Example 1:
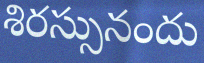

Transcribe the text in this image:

శిరస్సునందు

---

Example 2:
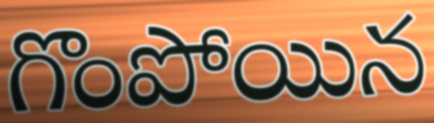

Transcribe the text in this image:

గొంపోయిన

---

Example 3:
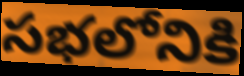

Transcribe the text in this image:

సభలోనికి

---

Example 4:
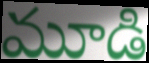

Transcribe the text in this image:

మూడి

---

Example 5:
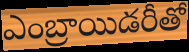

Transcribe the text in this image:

ఎంబ్రాయిడరీతో